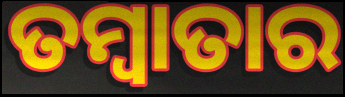
ତମ୍ବାତାର